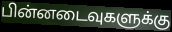
பின்னடைவுகளுக்கு